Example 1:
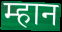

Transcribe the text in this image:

म्हान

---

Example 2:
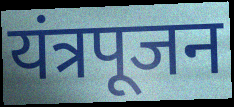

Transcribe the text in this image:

यंत्रपूजन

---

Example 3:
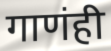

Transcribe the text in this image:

गाणंही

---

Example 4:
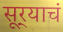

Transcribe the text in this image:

सूर्याचं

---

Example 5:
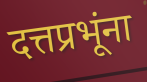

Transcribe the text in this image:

दत्तप्रभूंना